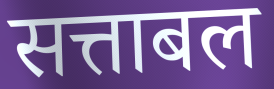
सत्ताबल